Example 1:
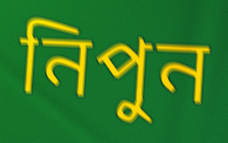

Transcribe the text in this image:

নিপুন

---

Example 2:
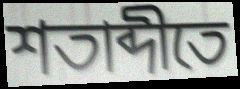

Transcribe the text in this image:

শতাব্দীতে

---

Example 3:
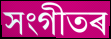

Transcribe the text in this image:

সংগীতৰ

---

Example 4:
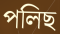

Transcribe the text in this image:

পলিছ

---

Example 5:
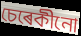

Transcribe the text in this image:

চেৰেকীনো